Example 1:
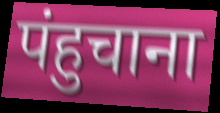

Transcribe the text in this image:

पंहुचाना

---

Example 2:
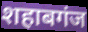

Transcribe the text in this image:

शहाबगंज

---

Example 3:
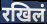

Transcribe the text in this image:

रखिलं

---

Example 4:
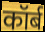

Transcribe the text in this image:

कॉर्ब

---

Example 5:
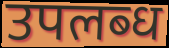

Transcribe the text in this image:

उपलब्‍ध